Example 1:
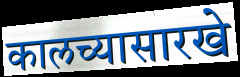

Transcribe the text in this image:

कालच्यासारखे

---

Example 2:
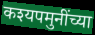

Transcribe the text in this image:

कश्यपमुनींच्या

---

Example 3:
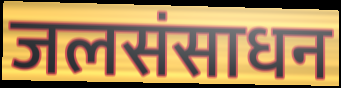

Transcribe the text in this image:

जलसंसाधन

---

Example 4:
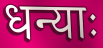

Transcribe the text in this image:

धन्याः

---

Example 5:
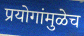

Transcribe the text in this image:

प्रयोगांमुळेच